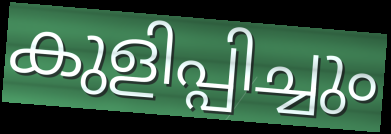
കുളിപ്പിച്ചും